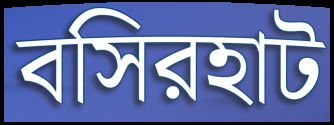
বসিরহাট